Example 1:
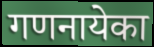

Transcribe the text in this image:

गणनायेका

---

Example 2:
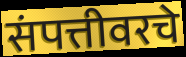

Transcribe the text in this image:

संपत्तीवरचे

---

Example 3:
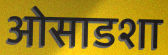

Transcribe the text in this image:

ओसाडशा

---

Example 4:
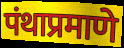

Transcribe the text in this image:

पंथाप्रमाणे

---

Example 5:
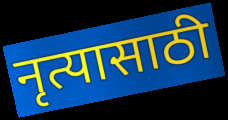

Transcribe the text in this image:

नृत्यासाठी